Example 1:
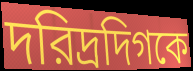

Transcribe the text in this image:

দরিদ্রদিগকে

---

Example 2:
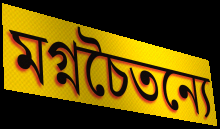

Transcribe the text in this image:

মগ্নচৈতন্যে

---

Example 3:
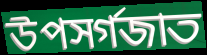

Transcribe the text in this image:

উপসর্গজাত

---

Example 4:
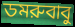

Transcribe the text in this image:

ডমরুবাবু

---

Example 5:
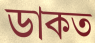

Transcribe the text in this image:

ডাকত